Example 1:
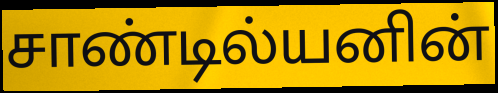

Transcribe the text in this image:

சாண்டில்யனின்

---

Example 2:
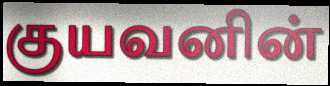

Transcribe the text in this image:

குயவனின்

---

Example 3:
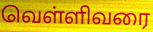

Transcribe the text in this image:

வெள்ளிவரை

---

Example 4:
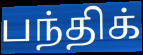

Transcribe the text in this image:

பந்திக்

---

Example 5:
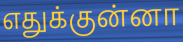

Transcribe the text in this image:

எதுக்குன்னா